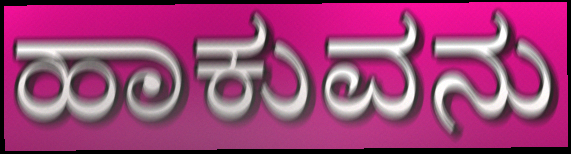
ಹಾಕುವನು